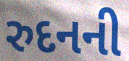
રુદનની